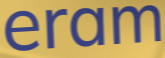
eram